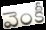
వెంకీ